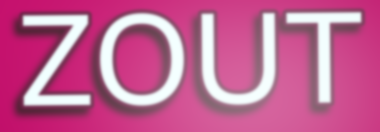
ZOUT